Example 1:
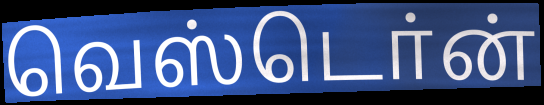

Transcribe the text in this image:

வெஸ்டெர்ன்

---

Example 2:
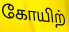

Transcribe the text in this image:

கோயிற்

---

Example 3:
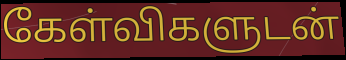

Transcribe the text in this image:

கேள்விகளுடன்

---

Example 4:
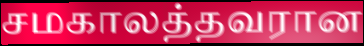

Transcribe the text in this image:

சமகாலத்தவரான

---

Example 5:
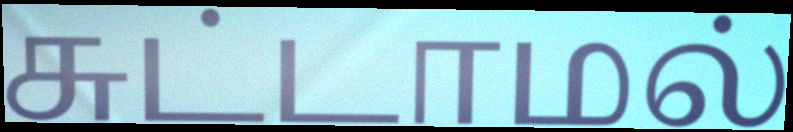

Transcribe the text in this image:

சுட்டாமல்